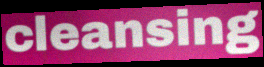
cleansing